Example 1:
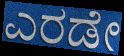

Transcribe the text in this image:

ಎರಡೇ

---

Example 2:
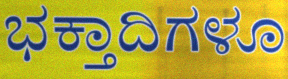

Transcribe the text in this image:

ಭಕ್ತಾದಿಗಳೂ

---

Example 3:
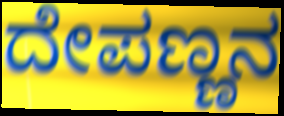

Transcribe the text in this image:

ದೇಪಣ್ಣನ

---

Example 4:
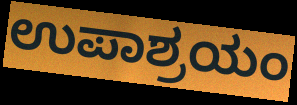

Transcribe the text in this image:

ಉಪಾಶ್ರಯಂ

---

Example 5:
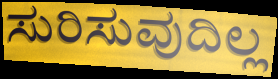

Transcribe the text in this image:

ಸುರಿಸುವುದಿಲ್ಲ